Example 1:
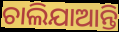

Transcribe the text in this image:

ଚାଲିଯାଆନ୍ତି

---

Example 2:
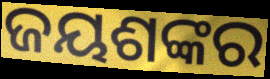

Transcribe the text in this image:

ଜୟଶଙ୍କର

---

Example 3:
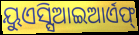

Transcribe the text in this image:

ୟୁଏସ୍ସିଆଇଆର୍ଏଫ୍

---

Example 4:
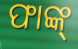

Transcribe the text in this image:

ଫାଙ୍କ୍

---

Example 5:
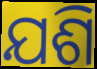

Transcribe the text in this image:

ଯଶି